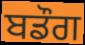
ਬਡੌਗ